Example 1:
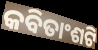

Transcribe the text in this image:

କବିତାଂଶଟି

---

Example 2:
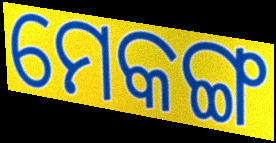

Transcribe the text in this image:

ମେକଙ୍ଗ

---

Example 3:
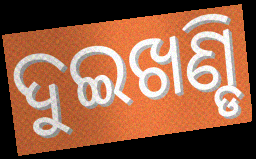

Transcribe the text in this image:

ଦୁଇଖଣ୍ଡି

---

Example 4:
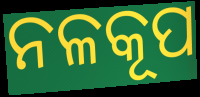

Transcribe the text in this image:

ନଳକୂପ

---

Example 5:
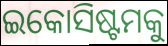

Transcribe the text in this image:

ଇକୋସିଷ୍ଟମକୁ